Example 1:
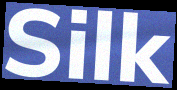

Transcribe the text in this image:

Silk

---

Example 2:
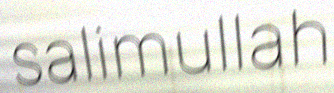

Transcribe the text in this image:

salimullah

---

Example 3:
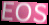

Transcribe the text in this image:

EOS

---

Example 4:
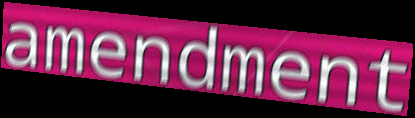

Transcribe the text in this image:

amendment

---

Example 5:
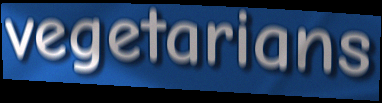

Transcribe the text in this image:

vegetarians